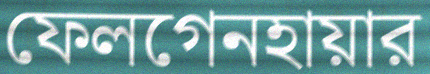
ফেলগেনহায়ার